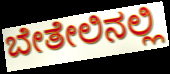
ಬೇತೇಲಿನಲ್ಲಿ